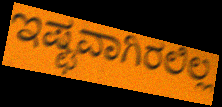
ಇಷ್ಟವಾಗಿರಲಿಲ್ಲ